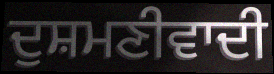
ਦੁਸ਼ਮਣੀਵਾਦੀ